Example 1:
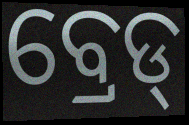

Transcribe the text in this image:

ବ୍ରେଡ୍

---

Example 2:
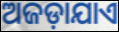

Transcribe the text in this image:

ଅଜଡ଼ାଯାଏ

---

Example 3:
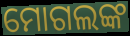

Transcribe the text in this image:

ମୋଗଲଙ୍କ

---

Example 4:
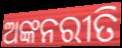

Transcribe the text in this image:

ଅଙ୍କନରୀତି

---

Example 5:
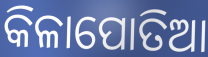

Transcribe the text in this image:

କିଳାପୋତିଆ